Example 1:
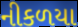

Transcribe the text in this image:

નીકળયા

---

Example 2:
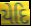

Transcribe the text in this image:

યેદિ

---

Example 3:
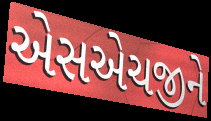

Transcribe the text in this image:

એસએચજીને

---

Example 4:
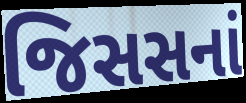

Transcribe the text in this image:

જિસસનાં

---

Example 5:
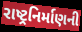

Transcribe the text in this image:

રાષ્ટ્રનિર્માણની